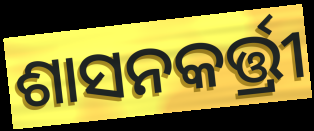
ଶାସନକର୍ତ୍ତ୍ରୀ